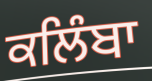
ਕਲਿੰਬਾ